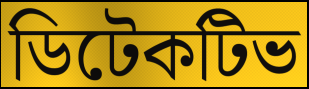
ডিটেকটিভ